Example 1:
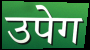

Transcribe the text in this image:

उपेग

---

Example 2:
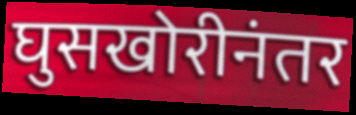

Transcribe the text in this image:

घुसखोरीनंतर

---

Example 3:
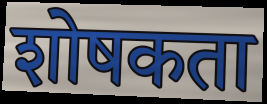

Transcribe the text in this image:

शोषकता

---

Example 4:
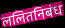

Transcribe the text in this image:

ललितनिबंध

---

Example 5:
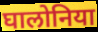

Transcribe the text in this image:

घालोनिया